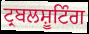
ਟ੍ਰਬਲਸ਼ੂਟਿੰਗ